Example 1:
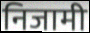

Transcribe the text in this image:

निजामी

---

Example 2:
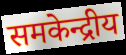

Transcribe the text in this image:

समकेन्द्रीय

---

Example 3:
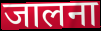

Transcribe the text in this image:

जालना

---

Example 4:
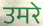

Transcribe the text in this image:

उमरे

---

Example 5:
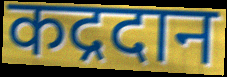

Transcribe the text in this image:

कद्रदान